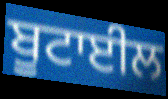
ਬੂਟਾਈਲ